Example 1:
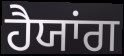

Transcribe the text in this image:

ਹੈਯਾਂਗ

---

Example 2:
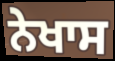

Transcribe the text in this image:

ਨੇਖਾਸ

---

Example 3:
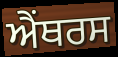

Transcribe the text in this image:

ਐਂਥਰਸ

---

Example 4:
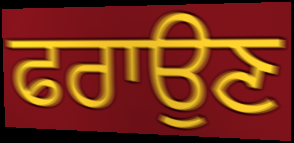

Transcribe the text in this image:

ਫਰਾਉਣ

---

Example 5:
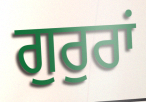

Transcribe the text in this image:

ਗੁਰੁਰਾਂ